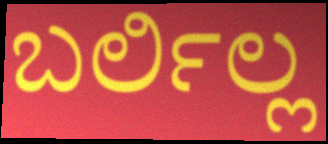
ಬರ್ಲಿಲ್ಲ